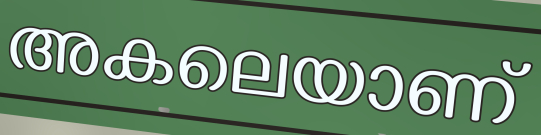
അകലെയാണ്